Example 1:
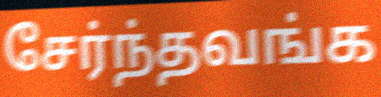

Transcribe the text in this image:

சேர்ந்தவங்க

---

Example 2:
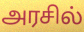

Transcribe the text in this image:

அரசில்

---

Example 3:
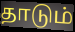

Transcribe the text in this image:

தாடும்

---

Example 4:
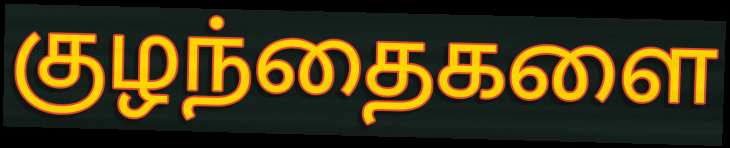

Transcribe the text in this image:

குழந்தைகளை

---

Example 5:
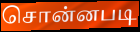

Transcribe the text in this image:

சொன்னபடி